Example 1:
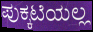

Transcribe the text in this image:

ಪುಕ್ಕಟೆಯಲ್ಲ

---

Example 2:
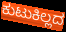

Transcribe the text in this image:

ಕುಟುಕಿಲ್ಲದ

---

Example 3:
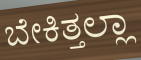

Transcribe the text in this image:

ಬೇಕಿತ್ತಲ್ಲಾ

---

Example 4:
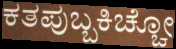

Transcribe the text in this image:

ಕತಪುಬ್ಬಕಿಚ್ಚೋ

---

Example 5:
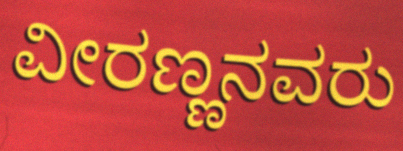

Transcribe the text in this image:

ವೀರಣ್ಣನವರು